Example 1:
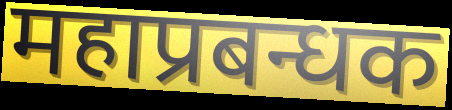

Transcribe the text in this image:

महाप्रबन्धक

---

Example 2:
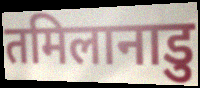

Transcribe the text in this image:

तमिलानाडु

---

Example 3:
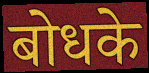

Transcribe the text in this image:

बोधके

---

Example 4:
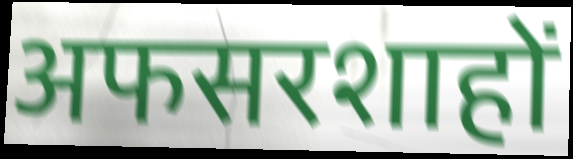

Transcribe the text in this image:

अफसरशाहों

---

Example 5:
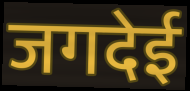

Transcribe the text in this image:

जगदेई